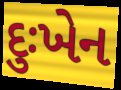
દુઃખેન